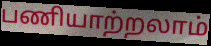
பணியாற்றலாம்